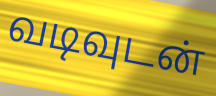
வடிவுடன்